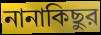
নানাকিছুর